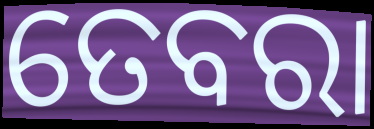
ତେବରା